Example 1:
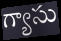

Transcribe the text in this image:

గ్యాసు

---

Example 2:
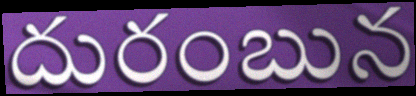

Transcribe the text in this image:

దురంబున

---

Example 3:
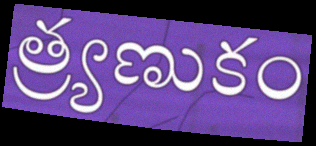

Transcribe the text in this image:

త్ర్యణుకం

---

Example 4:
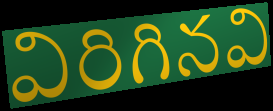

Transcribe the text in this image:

విరిగినవి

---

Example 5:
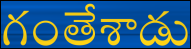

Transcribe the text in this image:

గంతేశాడు